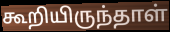
கூறியிருந்தாள்